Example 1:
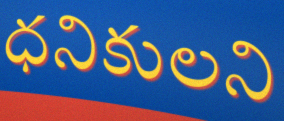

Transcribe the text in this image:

ధనికులని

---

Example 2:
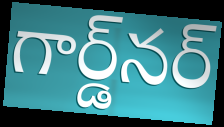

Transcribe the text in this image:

గార్డ్‌నర్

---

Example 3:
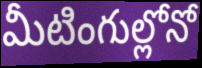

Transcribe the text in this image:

మీటింగుల్లోనో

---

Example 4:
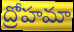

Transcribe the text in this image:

ద్రోహమా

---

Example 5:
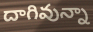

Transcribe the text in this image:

దాగివున్నా